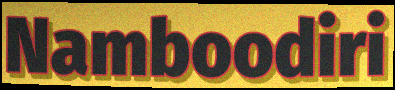
Namboodiri